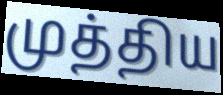
முத்திய